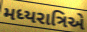
મધ્યરાત્રિએ